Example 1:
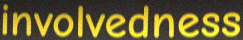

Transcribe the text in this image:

involvedness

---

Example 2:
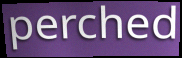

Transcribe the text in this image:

perched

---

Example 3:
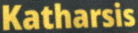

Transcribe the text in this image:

Katharsis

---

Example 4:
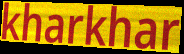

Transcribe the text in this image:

kharkhar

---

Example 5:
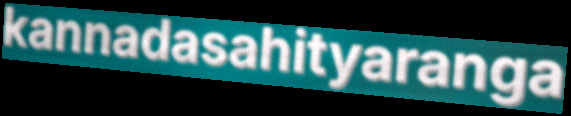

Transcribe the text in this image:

kannadasahityaranga